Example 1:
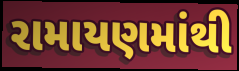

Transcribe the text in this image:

રામાયણમાંથી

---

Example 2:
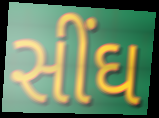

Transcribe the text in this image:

સીંઘ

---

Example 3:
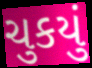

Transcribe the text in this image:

ચુકયું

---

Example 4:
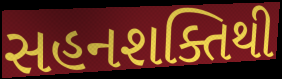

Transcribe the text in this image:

સહનશક્તિથી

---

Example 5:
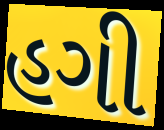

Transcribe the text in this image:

હગી